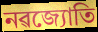
নৱজ্যোতি